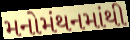
મનોમંથનમાંથી